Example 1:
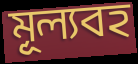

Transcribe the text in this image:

মূল্যবহ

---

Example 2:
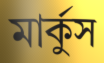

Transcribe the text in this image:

মার্কুস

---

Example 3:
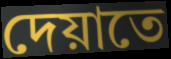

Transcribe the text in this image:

দেয়াতে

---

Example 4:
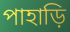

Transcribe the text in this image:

পাহাড়ি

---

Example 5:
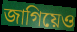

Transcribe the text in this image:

জাগিয়েও